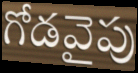
గోడవైపు